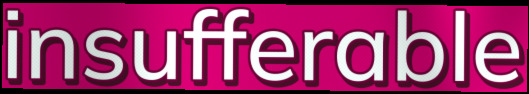
insufferable